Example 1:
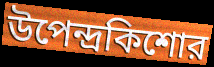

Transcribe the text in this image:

উপেন্দ্রকিশোর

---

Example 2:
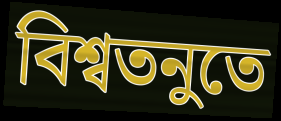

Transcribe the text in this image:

বিশ্বতনুতে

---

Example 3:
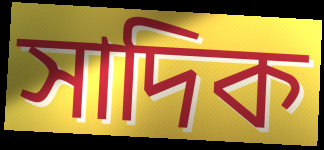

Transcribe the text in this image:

সাদিক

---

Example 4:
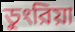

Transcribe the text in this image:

ডুংরিয়া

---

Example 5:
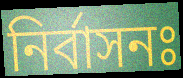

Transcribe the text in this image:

নির্বাসনঃ